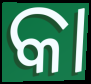
କା